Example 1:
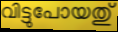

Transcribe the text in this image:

വിട്ടുപോയതു്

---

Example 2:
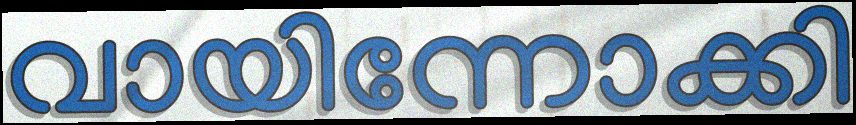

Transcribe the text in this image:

വായിന്നോക്കി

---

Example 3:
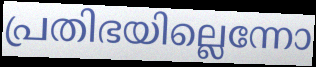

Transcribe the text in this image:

പ്രതിഭയില്ലെന്നോ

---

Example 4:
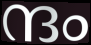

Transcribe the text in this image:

ന്ദം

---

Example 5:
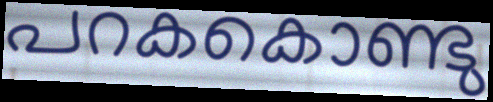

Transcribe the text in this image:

പറകകൊണ്ടു